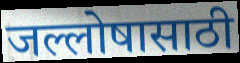
जल्लोषासाठी